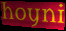
hoyni